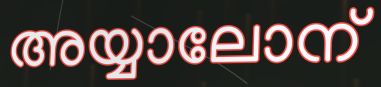
അയ്യാലോന്